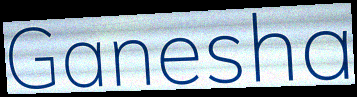
Ganesha